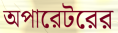
অপারেটরের